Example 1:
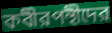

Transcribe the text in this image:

কবীরপন্থীদের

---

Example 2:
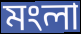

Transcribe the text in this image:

মংলা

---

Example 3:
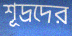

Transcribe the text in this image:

শূদ্রদের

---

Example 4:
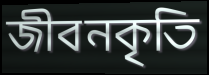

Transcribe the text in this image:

জীবনকৃতি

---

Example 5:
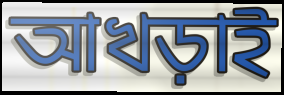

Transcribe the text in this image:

আখড়াই